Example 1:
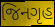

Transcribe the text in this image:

જિનગૃહ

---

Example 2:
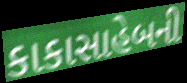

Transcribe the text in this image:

કાકાસાહેબની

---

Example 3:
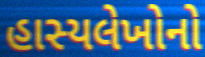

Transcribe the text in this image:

હાસ્યલેખોનો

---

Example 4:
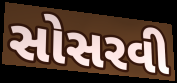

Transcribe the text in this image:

સોસરવી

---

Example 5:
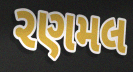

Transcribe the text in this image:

રણમલ